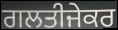
ਗਲਤੀਜੇਕਰ